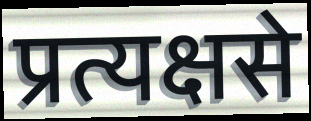
प्रत्यक्षसे